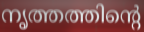
നൃത്തത്തിന്റെ